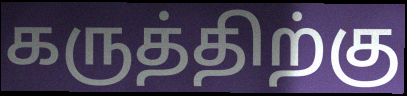
கருத்திற்கு